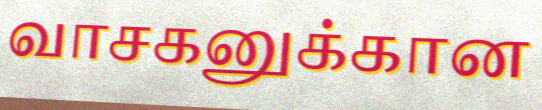
வாசகனுக்கான